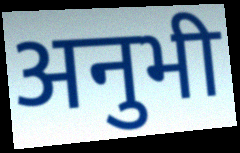
अनुभी